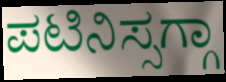
ಪಟಿನಿಸ್ಸಗ್ಗಾ